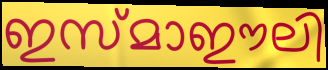
ഇസ്മാഈലി